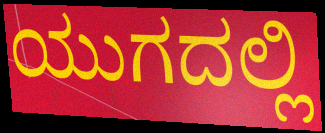
ಯುಗದಲ್ಲಿ